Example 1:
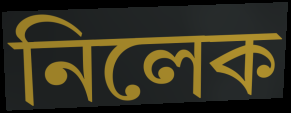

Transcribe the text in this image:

নিলেক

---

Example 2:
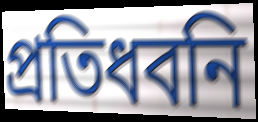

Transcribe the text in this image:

প্রতিধবনি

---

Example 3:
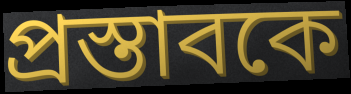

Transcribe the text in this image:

প্রস্তাবকে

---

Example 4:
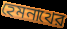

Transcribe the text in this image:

হেমনাথের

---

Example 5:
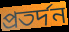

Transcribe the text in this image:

প্রতর্দন